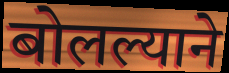
बोलल्याने